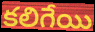
కలిగేయి